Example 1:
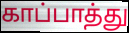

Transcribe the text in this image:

காப்பாத்து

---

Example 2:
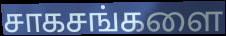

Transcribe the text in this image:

சாகசங்களை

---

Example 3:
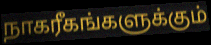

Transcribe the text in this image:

நாகரீகங்களுக்கும்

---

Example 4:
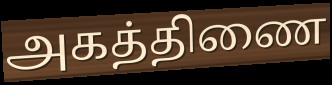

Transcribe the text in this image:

அகத்திணை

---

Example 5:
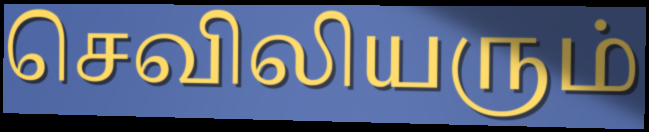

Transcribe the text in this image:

செவிலியரும்